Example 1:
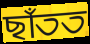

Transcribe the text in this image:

ছাঁতত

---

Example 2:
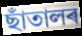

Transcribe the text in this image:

ছাঁতালৰ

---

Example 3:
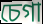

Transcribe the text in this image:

চেগা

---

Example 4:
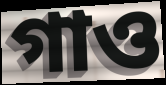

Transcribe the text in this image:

গাও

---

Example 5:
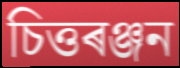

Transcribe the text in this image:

চিত্তৰঞ্জন